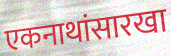
एकनाथांसारखा